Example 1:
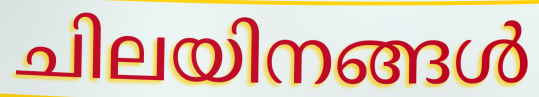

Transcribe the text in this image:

ചിലയിനങ്ങൾ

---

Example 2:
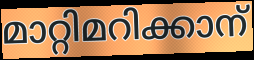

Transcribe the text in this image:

മാറ്റിമറിക്കാന്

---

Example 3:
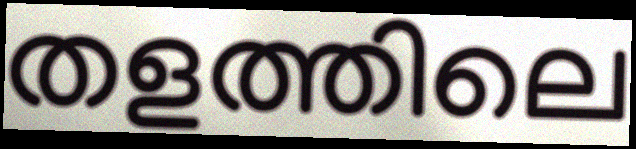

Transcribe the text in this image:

തളത്തിലെ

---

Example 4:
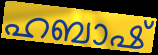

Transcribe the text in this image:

ഹബാഷ്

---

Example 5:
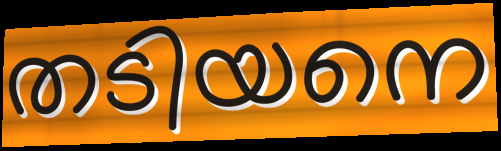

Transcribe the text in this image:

തടിയനെ